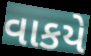
વાકયે